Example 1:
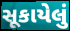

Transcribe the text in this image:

સૂકાયેલું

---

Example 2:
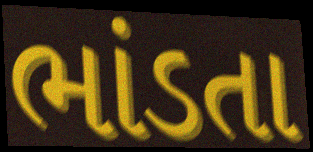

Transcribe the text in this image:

ભાંડતા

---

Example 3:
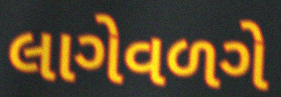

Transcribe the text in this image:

લાગેવળગે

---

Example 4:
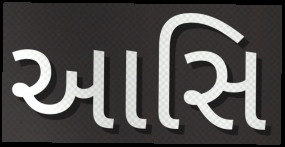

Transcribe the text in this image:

આસિ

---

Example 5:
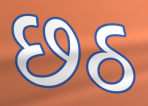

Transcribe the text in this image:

છઠ